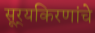
सूर्यकिरणांचे